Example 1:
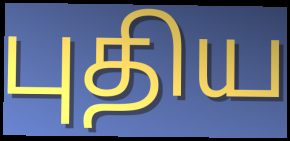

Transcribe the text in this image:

புதிய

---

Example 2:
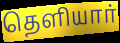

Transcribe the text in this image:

தெளியார்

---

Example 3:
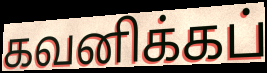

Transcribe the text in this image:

கவனிக்கப்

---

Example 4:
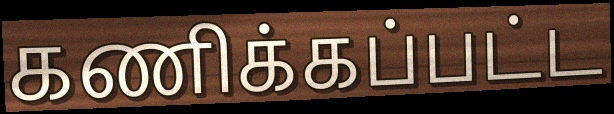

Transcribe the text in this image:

கணிக்கப்பட்ட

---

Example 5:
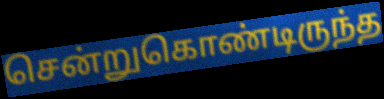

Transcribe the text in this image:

சென்றுகொண்டிருந்த